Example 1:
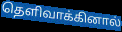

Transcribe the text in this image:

தெளிவாக்கினால்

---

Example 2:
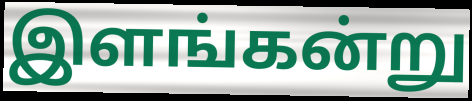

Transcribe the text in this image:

இளங்கன்று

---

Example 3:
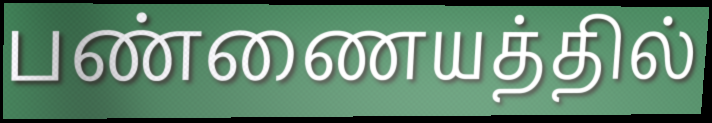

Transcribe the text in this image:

பண்ணையத்தில்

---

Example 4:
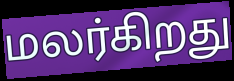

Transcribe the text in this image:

மலர்கிறது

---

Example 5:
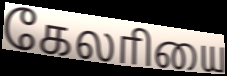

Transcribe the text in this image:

கேலரியை